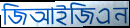
জিআইজিএন